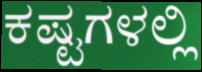
ಕಷ್ಟಗಳಲ್ಲಿ